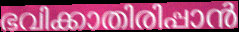
ഭവിക്കാതിരിപ്പാൻ